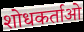
शोधकर्ताओ